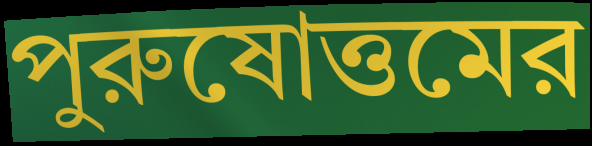
পুরুষোত্তমের